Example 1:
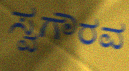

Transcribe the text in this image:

ಸ್ವಗೌರವ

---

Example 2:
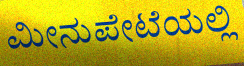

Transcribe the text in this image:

ಮೀನುಪೇಟೆಯಲ್ಲಿ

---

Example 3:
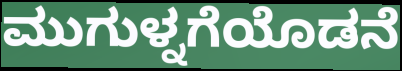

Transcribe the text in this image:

ಮುಗುಳ್ನಗೆಯೊಡನೆ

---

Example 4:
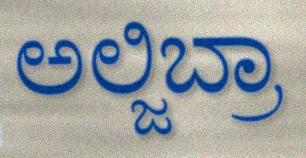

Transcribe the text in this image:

ಅಲ್ಜಿಬ್ರಾ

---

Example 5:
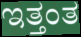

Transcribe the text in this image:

ಇತ್ತಂತ